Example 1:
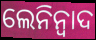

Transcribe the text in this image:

ଲେନିନ୍ବାଦ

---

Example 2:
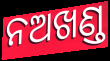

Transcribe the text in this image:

ନଅଖଣ୍ଡ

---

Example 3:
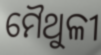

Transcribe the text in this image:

ମୈଥୁଳୀ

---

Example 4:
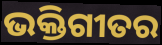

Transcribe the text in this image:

ଭକ୍ତିଗୀତର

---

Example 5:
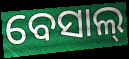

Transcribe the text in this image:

ବେସାଲ୍